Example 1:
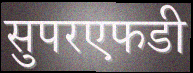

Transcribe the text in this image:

सुपरएफडी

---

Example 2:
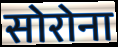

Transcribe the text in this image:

सोरोना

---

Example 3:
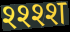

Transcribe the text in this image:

श्श्श्श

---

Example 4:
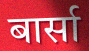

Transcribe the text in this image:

बार्सा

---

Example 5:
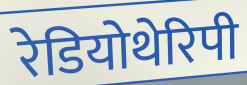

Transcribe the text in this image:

रेडियोथेरिपी